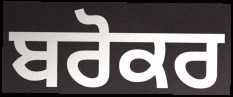
ਬਰੋਕਰ